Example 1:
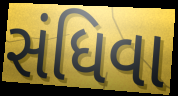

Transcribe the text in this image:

સંધિવા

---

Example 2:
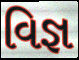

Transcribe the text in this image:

વિજ્ઞ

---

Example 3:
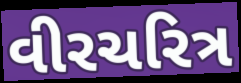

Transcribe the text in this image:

વીરચરિત્ર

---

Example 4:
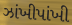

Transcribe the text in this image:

ઝાંખીપાંખી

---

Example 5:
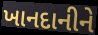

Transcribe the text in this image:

ખાનદાનીને